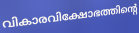
വികാരവിക്ഷോഭത്തിന്റെ